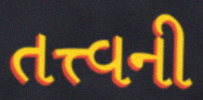
તત્ત્વની